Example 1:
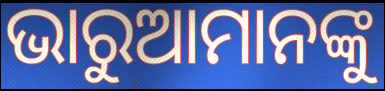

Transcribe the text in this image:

ଭାରୁଆମାନଙ୍କୁ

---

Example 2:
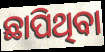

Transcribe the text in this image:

ଛାପିଥିବା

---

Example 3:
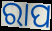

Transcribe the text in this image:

ରାପ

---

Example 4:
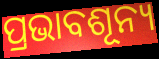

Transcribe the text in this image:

ପ୍ରଭାବଶୂନ୍ୟ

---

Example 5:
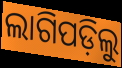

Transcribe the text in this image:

ଲାଗିପଡ଼ିଲୁ